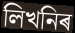
লিখনিৰ